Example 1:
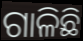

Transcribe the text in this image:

ଗାଳିଛି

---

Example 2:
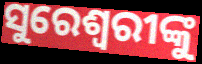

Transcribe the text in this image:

ସୁରେଶ୍ୱରୀଙ୍କୁ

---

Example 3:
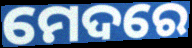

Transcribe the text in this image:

ମେଦରେ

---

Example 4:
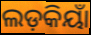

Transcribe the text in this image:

ଲଡ଼କିୟାଁ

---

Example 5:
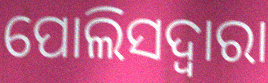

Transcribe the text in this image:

ପୋଲିସଦ୍ୱାରା